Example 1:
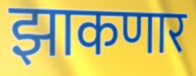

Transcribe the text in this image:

झाकणार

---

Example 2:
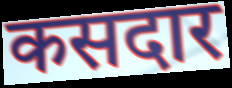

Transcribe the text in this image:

कसदार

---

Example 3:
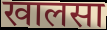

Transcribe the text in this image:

खालसा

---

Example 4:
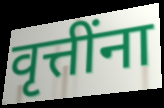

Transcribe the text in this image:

वृत्तींना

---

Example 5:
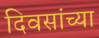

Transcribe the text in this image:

दिवसांच्या